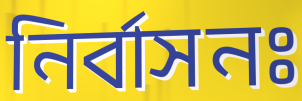
নির্বাসনঃ